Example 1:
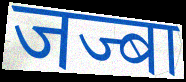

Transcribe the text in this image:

जज्बा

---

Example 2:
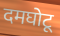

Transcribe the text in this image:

दमघोटू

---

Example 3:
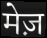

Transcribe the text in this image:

मेज़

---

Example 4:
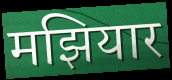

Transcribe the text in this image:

मझियार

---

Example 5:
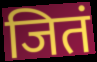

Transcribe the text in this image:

जितं